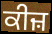
ਕੀਜ਼